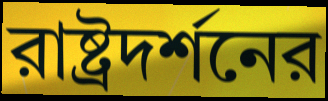
রাষ্ট্রদর্শনের